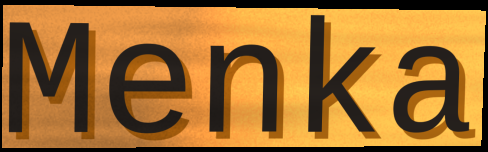
Menka